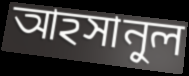
আহসানুল